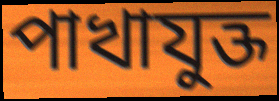
পাখাযুক্ত